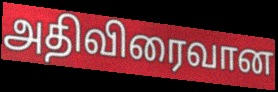
அதிவிரைவான